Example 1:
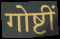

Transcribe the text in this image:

गोष्टीं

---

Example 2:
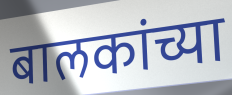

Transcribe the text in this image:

बालकांच्या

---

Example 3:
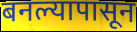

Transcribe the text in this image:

बनल्यापासून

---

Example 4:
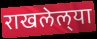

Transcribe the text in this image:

राखलेल्या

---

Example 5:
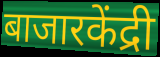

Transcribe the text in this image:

बाजारकेंद्री